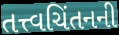
તત્ત્વચિંતનની